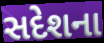
સદેશના